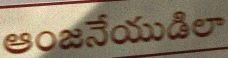
ఆంజనేయుడిలా